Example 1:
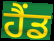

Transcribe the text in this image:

ਹੈਂਡ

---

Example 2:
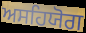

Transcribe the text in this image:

ਅਸਹਿਯੋਗ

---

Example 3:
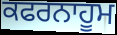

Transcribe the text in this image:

ਕਫਰਨਾਹੂਮ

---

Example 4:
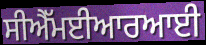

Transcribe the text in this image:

ਸੀਐੱਮਈਆਰਆਈ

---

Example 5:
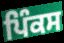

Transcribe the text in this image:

ਪਿੰਕਸ